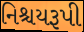
નિશ્ચયરૂપી